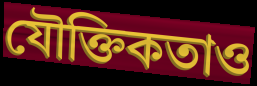
যৌক্তিকতাও